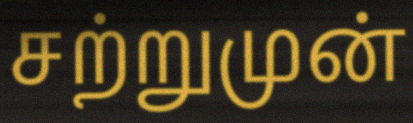
சற்றுமுன்